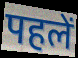
पहलें